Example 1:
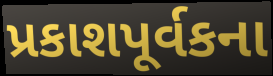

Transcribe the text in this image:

પ્રકાશપૂર્વકના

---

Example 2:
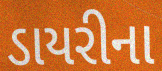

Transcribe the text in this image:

ડાયરીના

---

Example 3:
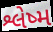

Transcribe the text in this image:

શ્લેષ્મ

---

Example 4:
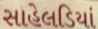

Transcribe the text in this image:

સાહેલડિયાં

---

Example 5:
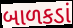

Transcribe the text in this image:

બાળકડાં